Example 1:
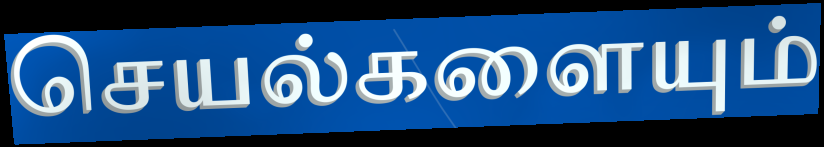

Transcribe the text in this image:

செயல்களையும்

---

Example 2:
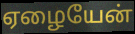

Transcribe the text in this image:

ஏழையேன்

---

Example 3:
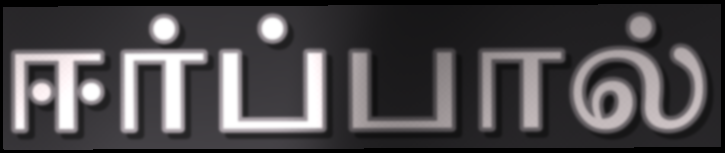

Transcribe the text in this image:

ஈர்ப்பால்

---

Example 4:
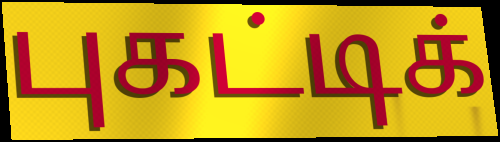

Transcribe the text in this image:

புகட்டிக்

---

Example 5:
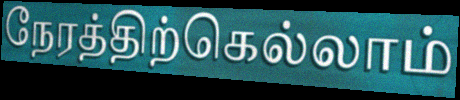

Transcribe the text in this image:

நேரத்திற்கெல்லாம்